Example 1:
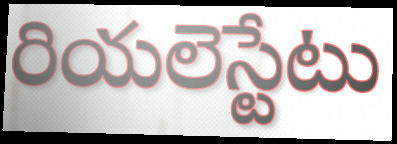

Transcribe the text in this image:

రియలెస్టేటు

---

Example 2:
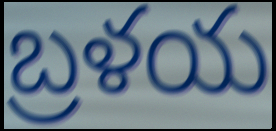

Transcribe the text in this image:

బ్రళయ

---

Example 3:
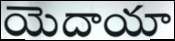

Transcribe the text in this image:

యెదాయా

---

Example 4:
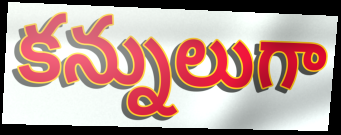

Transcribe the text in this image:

కన్నులుగా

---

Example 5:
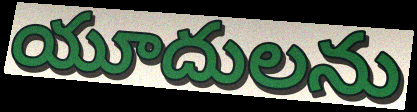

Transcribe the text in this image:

యూదులను